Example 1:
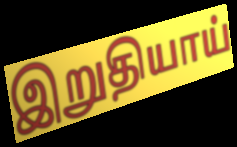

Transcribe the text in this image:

இறுதியாய்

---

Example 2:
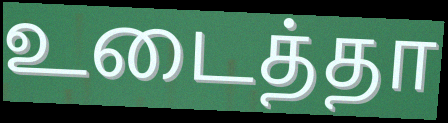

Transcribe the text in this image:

உடைத்தா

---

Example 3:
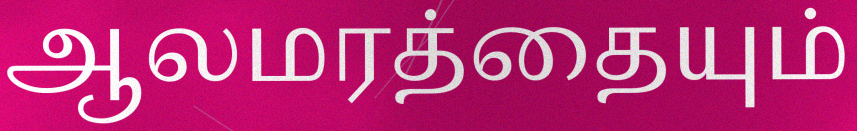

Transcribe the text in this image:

ஆலமரத்தையும்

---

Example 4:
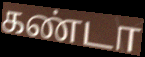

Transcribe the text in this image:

கண்டா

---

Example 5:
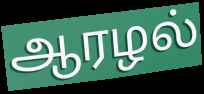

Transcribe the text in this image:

ஆரழல்